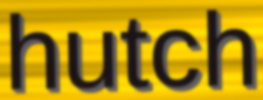
hutch